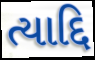
ત્યાદ્દિ